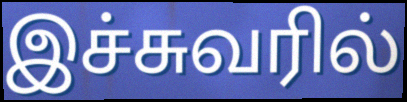
இச்சுவரில்